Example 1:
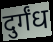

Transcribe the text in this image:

दुर्गंध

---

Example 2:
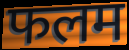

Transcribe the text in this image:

फलम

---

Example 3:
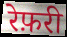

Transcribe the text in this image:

रेफ़री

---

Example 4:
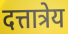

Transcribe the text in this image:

दत्तात्रेय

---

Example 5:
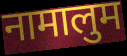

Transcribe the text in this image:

नामालुम